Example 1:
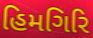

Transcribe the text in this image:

હિમગિરિ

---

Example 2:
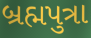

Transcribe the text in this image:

બ્રહ્મપુત્રા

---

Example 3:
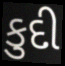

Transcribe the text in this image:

કુદી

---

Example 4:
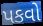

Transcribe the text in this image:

પકવો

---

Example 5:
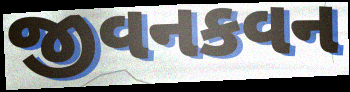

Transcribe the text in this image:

જીવનકવન